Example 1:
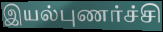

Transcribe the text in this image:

இயல்புணர்ச்சி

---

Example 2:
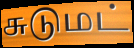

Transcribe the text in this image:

சுடுமட்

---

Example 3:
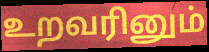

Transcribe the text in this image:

உறவரினும்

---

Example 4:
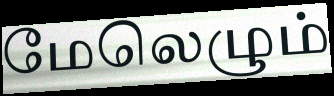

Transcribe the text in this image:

மேலெழும்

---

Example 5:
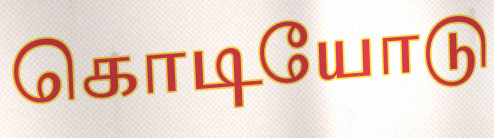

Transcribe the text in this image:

கொடியோடு